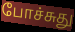
போச்சுது